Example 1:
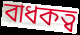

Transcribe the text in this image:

বাধকত্ব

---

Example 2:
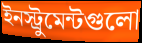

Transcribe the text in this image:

ইনস্ট্রুমেন্টগুলো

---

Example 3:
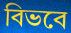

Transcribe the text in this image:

বিভবে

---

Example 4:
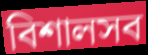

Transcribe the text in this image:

বিশালসব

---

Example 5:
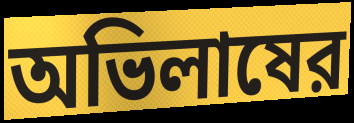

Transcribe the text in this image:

অভিলাষের